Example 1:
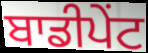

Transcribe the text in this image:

ਬਾਡੀਪੇਂਟ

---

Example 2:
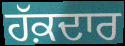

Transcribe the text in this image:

ਹੱਕ਼ਦਾਰ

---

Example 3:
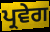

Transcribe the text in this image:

ਪ੍ਰਵੇਗ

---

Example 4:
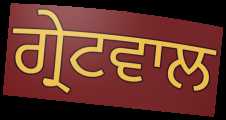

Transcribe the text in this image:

ਗ੍ਰੇਟਵਾਲ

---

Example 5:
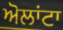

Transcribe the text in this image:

ਅੋਲਾਂਟਾ